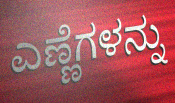
ಎಣ್ಣೆಗಳನ್ನು